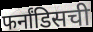
फर्नांडिसची